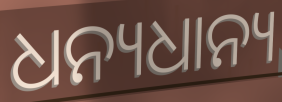
ଧନ୍ୟଧାନ୍ୟ